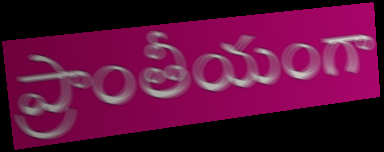
ప్రాంతీయంగా